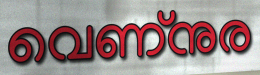
വെണ്നുര